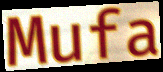
Mufa